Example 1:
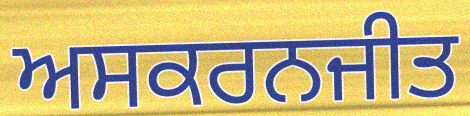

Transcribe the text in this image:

ਅਸਕਰਨਜੀਤ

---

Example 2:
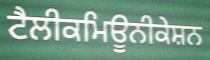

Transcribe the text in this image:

ਟੈਲੀਕਮਿਊਨੀਕੇਸ਼ਨ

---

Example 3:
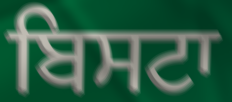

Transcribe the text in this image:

ਬਿਸਟਾ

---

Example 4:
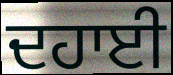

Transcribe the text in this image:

ਦਹਾਈ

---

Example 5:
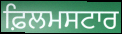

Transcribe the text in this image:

ਫ਼ਿਲਮਸਟਾਰ